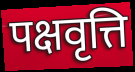
पक्षवृत्ति